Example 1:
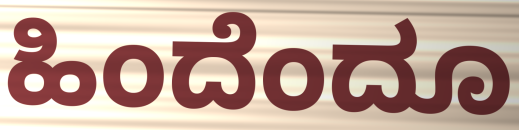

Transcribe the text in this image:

ಹಿಂದೆಂದೂ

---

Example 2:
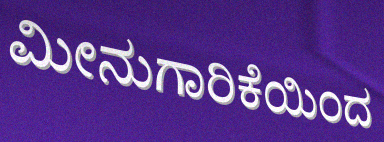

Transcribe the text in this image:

ಮೀನುಗಾರಿಕೆಯಿಂದ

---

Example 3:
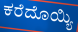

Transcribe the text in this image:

ಕರೆದೊಯ್ಯಿ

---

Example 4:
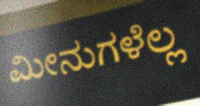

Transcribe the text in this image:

ಮೀನುಗಳೆಲ್ಲ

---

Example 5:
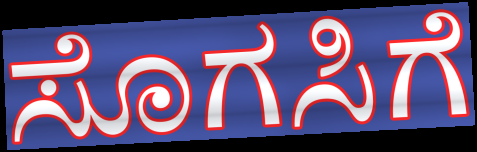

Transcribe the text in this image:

ಸೊಗಸಿಗೆ